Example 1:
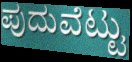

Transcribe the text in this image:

ಪುದುವೆಟ್ಟು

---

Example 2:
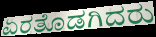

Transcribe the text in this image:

ಏರತೊಡಗಿದರು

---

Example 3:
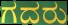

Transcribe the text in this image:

ಗದರು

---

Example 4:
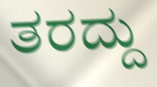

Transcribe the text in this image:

ತರದ್ದು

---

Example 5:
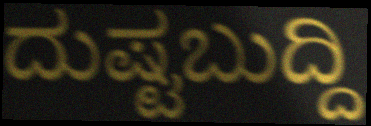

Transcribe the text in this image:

ದುಷ್ಟಬುದ್ದಿ